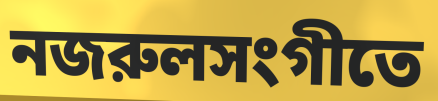
নজরুলসংগীতে